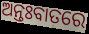
ଅନ୍ତଃବାତରେ